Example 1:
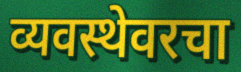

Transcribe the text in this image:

व्यवस्थेवरचा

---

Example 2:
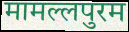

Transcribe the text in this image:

मामल्लपुरम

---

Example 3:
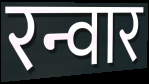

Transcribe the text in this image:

रन्वार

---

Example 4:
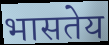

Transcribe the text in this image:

भासतेय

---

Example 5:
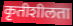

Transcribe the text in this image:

कृतीशीलता